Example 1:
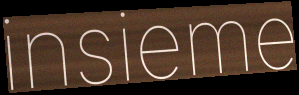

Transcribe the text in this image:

insieme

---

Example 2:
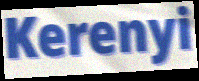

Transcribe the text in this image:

Kerenyi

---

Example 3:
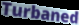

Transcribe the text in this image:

Turbaned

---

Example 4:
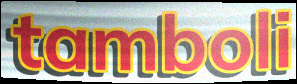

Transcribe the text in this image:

tamboli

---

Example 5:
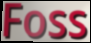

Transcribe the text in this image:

Foss